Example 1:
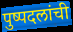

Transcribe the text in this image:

पुष्पदलांची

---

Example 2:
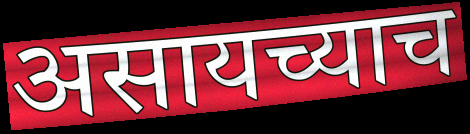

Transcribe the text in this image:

असायच्याच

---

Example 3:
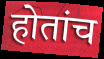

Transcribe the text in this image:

होतांच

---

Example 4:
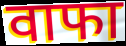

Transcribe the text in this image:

वाफा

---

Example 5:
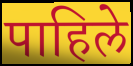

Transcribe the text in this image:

पाहिले